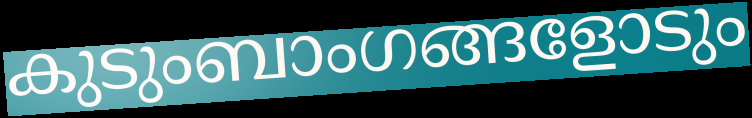
കുടുംബാംഗങ്ങളോടും